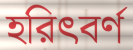
হরিৎবর্ণ